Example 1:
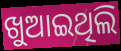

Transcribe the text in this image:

ଖୁଆଇଥିଲି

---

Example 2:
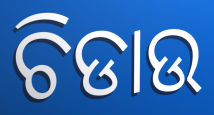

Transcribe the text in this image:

ଚିଡାଉ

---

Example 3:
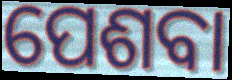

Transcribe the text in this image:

ପେଶବା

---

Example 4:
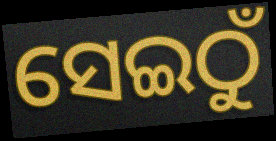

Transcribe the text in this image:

ସେଇଠୁଁ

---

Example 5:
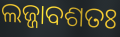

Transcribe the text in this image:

ଲଜ୍ଜାବଶତଃ